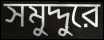
সমুদ্দুরে